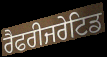
ਰੈਫਰੀਜਰੇਟਿਡ